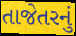
તાજેતરનું